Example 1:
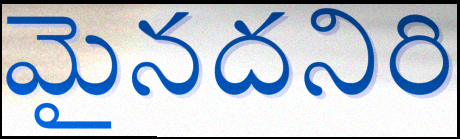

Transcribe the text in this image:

మైనదనిరి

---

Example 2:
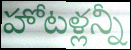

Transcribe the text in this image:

హోటళ్లన్నీ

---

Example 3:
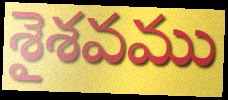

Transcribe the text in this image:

శైశవము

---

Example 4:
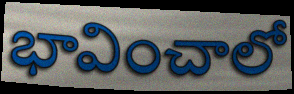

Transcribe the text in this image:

భావించాలో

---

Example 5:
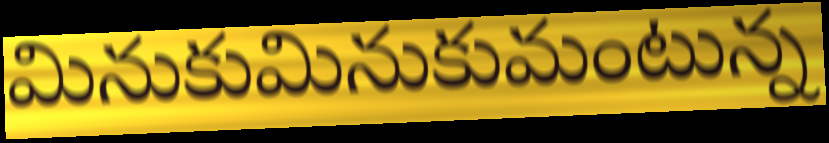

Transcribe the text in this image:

మినుకుమినుకుమంటున్న